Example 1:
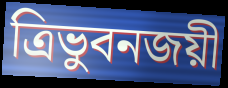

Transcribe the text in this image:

ত্রিভুবনজয়ী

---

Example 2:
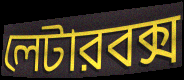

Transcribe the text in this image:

লেটারবক্স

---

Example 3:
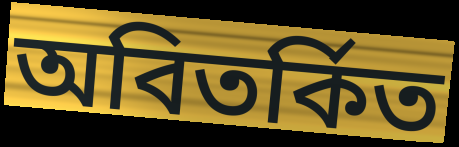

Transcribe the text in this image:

অবিতর্কিত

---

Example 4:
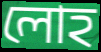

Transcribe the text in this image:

লোহ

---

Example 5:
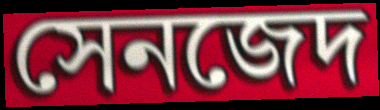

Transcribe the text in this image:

সেনজেদ